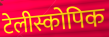
टेलीस्कोपिक